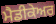
ਮੈਡੀਕੇਅਰ